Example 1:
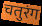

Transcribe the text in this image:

चतुरंग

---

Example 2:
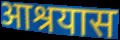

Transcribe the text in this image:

आश्रयास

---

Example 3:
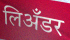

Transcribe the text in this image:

लिअँडर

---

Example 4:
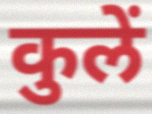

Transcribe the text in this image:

कुलें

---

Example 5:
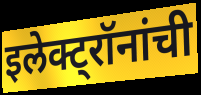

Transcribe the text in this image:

इलेक्ट्रॉनांची